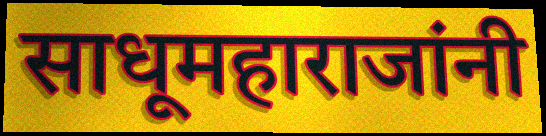
साधूमहाराजांनी